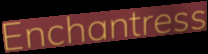
Enchantress